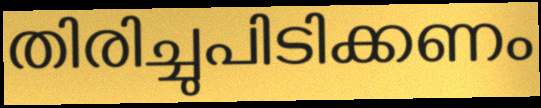
തിരിച്ചുപിടിക്കണം